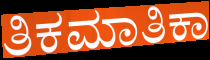
ತಿಕಮಾತಿಕಾ